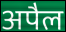
अपैल